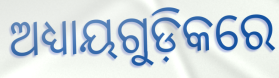
ଅଧ୍ୟାୟଗୁଡ଼ିକରେ